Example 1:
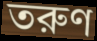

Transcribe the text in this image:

তরুণ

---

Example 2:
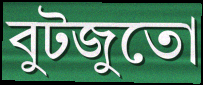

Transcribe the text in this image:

বুটজুতো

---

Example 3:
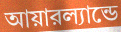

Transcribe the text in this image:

আয়ারল্যান্ডে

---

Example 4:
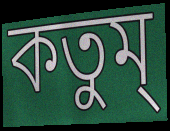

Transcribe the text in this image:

কতুম্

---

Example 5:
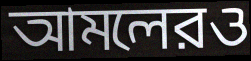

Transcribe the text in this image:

আমলেরও